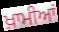
ਖ਼ਾਮੀਆਂ